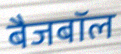
बैजबॉल